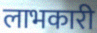
लाभकारी